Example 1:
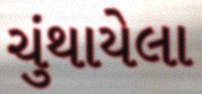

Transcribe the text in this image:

ચુંથાયેલા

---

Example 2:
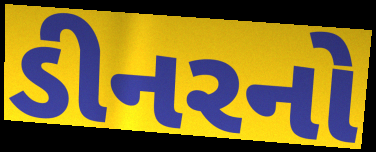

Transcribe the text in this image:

ડીનરનો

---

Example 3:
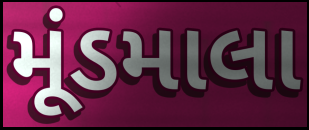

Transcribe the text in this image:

મૂંડમાલા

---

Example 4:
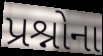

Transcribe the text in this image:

પ્રશ્નોના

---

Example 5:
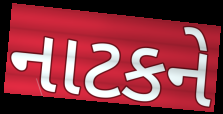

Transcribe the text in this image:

નાટકને